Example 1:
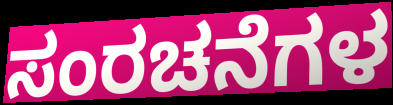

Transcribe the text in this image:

ಸಂರಚನೆಗಳ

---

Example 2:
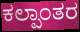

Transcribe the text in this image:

ಕಲ್ಪಾಂತರ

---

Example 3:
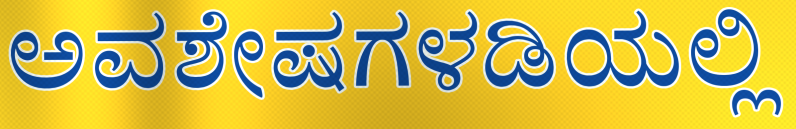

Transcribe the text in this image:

ಅವಶೇಷಗಳಡಿಯಲ್ಲಿ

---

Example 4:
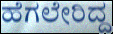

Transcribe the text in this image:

ಹೆಗಲೇರಿದ್ದ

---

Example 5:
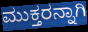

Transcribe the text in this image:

ಮುಕ್ತರನ್ನಾಗಿ